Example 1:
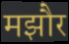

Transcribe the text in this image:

मझौर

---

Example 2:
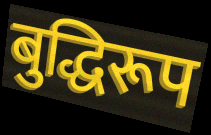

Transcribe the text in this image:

बुद्धिरूप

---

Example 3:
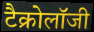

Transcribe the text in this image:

टैक्रोलॉजी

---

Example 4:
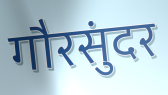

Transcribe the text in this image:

गौरसुंदर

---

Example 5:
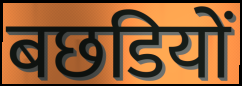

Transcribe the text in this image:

बछडियों